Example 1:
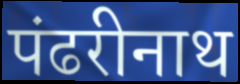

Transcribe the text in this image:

पंढरीनाथ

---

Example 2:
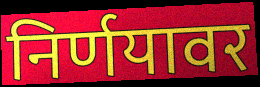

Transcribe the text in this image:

निर्णयावर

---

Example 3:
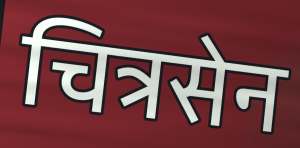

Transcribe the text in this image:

चित्रसेन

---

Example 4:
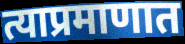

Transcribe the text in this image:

त्याप्रमाणात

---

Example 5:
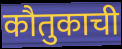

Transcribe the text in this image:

कौतुकाची